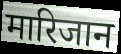
मारिजान